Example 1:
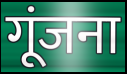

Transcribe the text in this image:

गूंजना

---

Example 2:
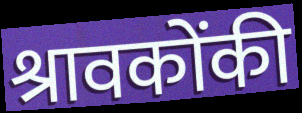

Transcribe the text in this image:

श्रावकोंकी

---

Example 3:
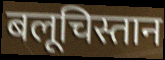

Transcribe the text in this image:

बलूचिस्तान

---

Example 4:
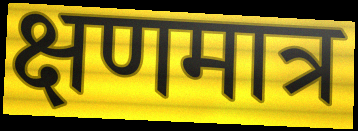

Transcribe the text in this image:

क्षणमात्र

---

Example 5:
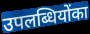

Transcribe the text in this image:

उपलब्धियोंका